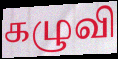
கழுவி